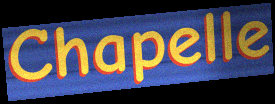
Chapelle